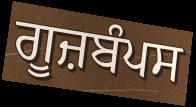
ਗੂਜ਼ਬੰਪਸ